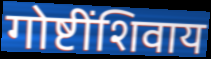
गोष्टींशिवाय